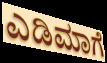
ಎಡಿಮಾಗೆ